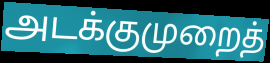
அடக்குமுறைத்